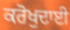
ਕਰੋਖੁਦਾਈ